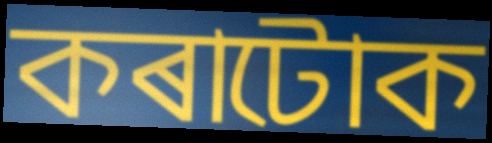
কৰাটোক